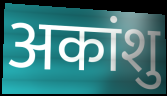
अकांशु